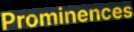
Prominences